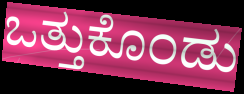
ಒತ್ತುಕೊಂಡು